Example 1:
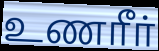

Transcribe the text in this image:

உணரீர்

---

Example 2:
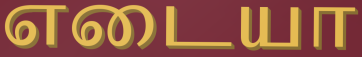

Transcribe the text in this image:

எடையா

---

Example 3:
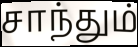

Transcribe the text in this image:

சாந்தும்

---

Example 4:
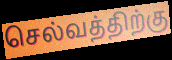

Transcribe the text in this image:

செல்வத்திற்கு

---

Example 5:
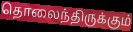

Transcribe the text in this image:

தொலைந்திருக்கும்